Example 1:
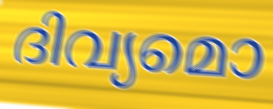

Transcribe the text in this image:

ദിവ്യമൊ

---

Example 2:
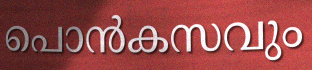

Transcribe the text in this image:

പൊൻകസവും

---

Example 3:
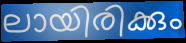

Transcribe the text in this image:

ലായിരിക്കും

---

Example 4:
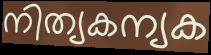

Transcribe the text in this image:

നിത്യകന്യക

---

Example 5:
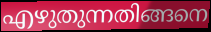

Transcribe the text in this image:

എഴുതുന്നതിങ്ങനെ